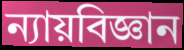
ন্যায়বিজ্ঞান